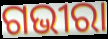
ଗଭୀରା